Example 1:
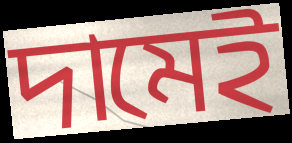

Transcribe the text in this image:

দামেই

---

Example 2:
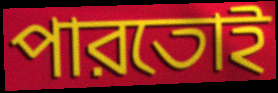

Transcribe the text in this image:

পারতোই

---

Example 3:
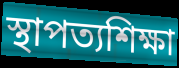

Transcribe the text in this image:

স্থাপত্যশিক্ষা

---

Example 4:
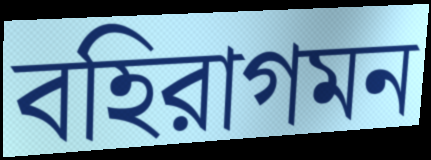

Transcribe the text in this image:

বহিরাগমন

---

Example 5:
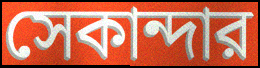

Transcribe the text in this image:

সেকান্দার